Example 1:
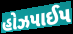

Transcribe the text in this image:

હોઝપાઈપ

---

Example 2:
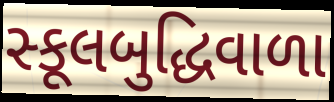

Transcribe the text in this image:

સ્કૂલબુદ્ધિવાળા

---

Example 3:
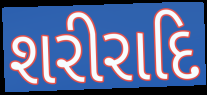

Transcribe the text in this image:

શરીરાદિ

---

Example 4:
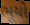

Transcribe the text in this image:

ભૂયો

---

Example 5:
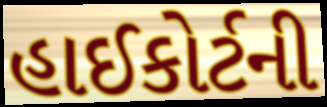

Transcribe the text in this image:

હાઈકોર્ટની